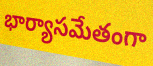
భార్యాసమేతంగా